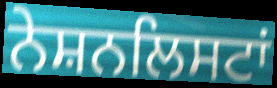
ਨੇਸ਼ਨਲਿਸਟਾਂ